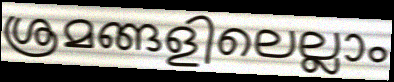
ശ്രമങ്ങളിലെല്ലാം